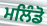
ਮਲਿੰਡੋ